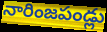
నారింజపండ్లు